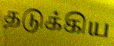
தடுக்கிய